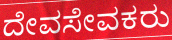
ದೇವಸೇವಕರು